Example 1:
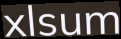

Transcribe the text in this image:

xlsum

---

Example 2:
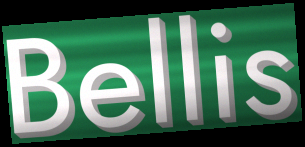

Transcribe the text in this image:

Bellis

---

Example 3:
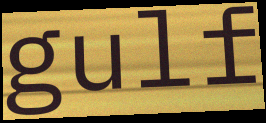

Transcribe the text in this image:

gulf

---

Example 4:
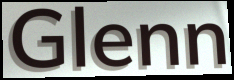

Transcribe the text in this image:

Glenn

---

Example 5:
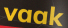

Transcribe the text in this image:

vaak